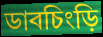
ডাবচিংড়ি